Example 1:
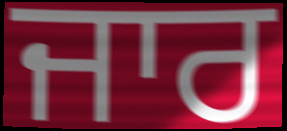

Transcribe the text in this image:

ਜਾਰ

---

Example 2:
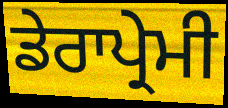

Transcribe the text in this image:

ਡੇਰਾਪ੍ਰੇਮੀ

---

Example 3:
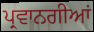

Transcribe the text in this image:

ਪ੍ਰਵਾਨਗੀਆਂ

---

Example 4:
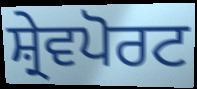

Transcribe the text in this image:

ਸ਼੍ਰੇਵਪੋਰਟ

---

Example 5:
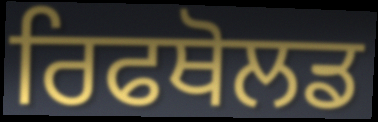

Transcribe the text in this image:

ਰਿਫਥੋਲਡ